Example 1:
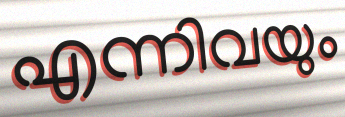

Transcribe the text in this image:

എന്നിവയും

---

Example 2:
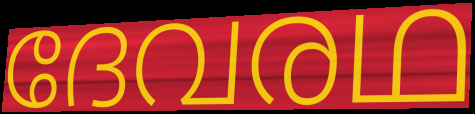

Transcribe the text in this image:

ദേവരഥ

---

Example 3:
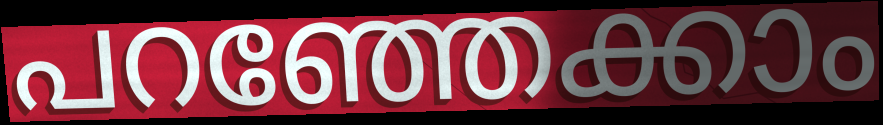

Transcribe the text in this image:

പറഞ്ഞേക്കാം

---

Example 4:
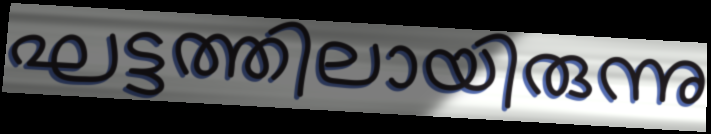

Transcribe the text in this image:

ഘട്ടത്തിലായിരുന്നു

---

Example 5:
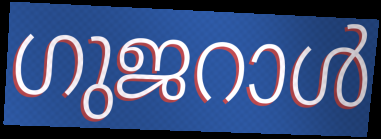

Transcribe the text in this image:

ഗുജറാൾ